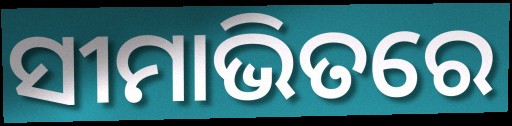
ସୀମାଭିତରେ